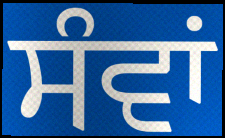
ਸੰਵਾਂ